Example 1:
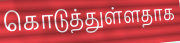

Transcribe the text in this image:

கொடுத்துள்ளதாக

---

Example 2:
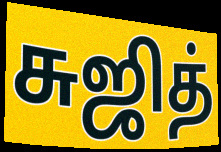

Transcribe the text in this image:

சுஜித்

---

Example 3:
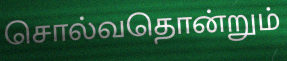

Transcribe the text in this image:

சொல்வதொன்றும்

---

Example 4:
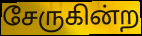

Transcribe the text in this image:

சேருகின்ற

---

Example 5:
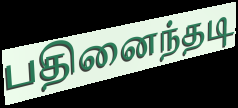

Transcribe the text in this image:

பதினைந்தடி